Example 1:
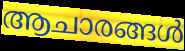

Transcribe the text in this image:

ആചാരങ്ങൾ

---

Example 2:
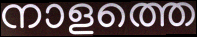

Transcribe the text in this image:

നാളത്തെ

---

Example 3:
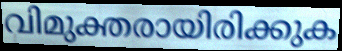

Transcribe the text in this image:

വിമുക്തരായിരിക്കുക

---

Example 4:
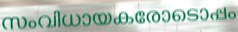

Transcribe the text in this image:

സംവിധായകരോടൊപ്പം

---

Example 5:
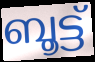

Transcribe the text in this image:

ബൂട്ട്